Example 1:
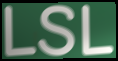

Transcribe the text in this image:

LSL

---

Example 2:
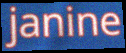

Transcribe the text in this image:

janine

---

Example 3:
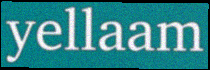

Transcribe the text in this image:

yellaam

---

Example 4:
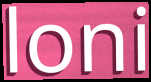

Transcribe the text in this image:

loni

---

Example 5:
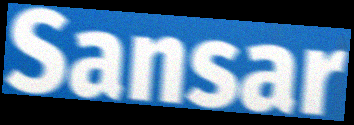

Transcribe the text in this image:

Sansar